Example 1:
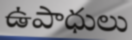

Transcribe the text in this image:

ఉపాధులు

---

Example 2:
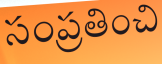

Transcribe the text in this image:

సంప్రతించి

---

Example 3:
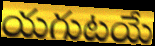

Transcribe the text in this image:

యగుటయే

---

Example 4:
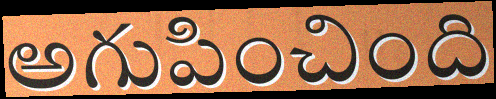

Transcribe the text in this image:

అగుపించింది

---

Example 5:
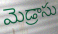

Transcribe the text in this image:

మెడ్రాసు